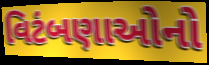
વિટંબણાઓનો